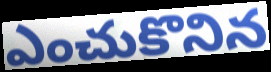
ఎంచుకొనిన